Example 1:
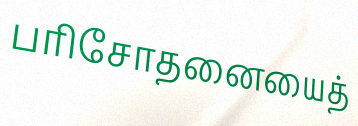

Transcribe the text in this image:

பரிசோதனையைத்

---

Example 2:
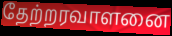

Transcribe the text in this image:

தேற்றரவாளனை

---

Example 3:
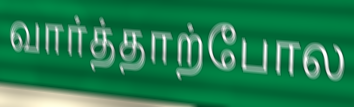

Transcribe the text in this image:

வார்த்தாற்போல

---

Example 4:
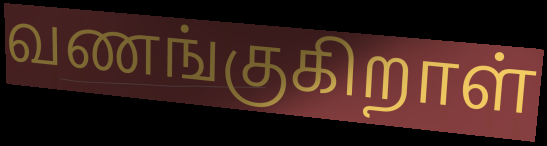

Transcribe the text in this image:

வணங்குகிறாள்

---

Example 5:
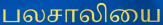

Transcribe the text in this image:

பலசாலியை